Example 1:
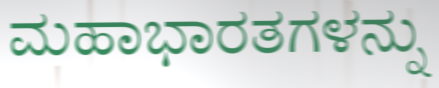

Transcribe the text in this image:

ಮಹಾಭಾರತಗಳನ್ನು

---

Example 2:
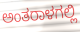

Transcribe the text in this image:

ಅಂತರಾಳಗಲ್ಲಿ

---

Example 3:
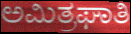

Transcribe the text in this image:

ಅಮಿತ್ರಘಾತಿ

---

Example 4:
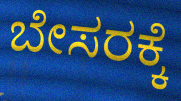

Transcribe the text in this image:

ಬೇಸರಕ್ಕೆ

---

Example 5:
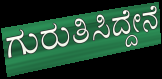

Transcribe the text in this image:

ಗುರುತಿಸಿದ್ದೇನೆ